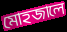
মোহজালে